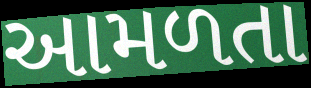
આમળતા